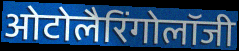
ओटोलैरिंगोलॉजी